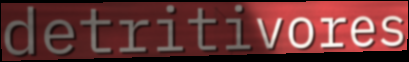
detritivores